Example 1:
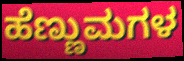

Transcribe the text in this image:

ಹೆಣ್ಣುಮಗಳ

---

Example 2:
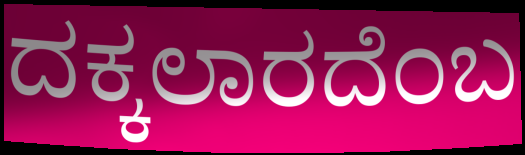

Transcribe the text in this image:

ದಕ್ಕಲಾರದೆಂಬ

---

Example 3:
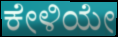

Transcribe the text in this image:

ಕೇಳಿಯೇ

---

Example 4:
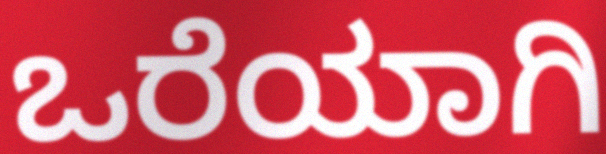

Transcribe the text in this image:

ಒರೆಯಾಗಿ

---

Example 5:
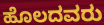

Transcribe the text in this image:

ಹೊಲದವರು